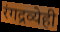
रंगद्रव्येही